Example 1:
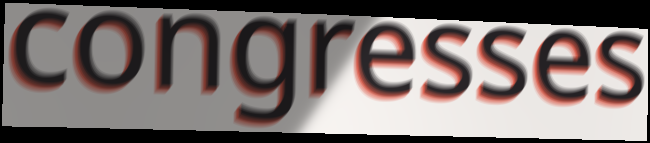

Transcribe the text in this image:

congresses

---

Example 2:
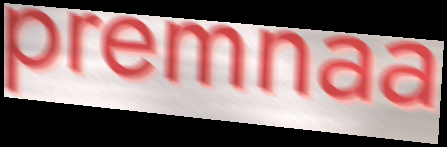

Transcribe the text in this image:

premnaa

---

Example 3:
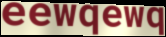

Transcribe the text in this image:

eewqewq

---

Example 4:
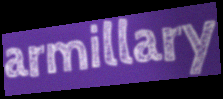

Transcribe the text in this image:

armillary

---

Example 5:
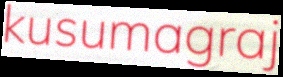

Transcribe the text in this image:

kusumagraj